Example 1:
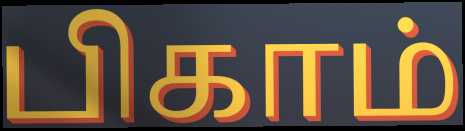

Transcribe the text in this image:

பிகாம்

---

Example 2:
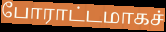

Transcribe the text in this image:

போராட்டமாகச்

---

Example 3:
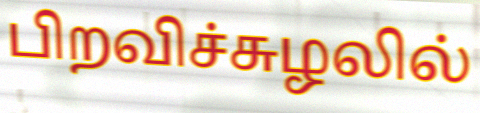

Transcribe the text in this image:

பிறவிச்சுழலில்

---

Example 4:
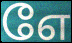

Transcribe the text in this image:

எே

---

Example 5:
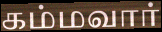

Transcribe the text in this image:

கம்மவார்